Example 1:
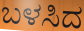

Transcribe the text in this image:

ಬಳಸಿದ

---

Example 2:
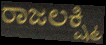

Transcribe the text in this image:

ರಾಜಲಕ್ಷ್ಮಿ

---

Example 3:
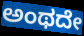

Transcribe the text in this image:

ಅಂಥದೇ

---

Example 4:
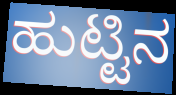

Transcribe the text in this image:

ಹುಟ್ಟಿನ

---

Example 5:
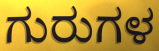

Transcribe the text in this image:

ಗುರುಗಳ